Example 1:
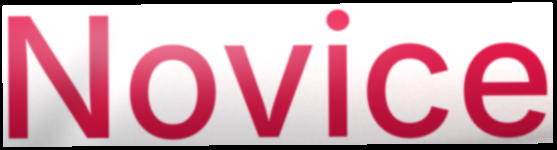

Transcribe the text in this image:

Novice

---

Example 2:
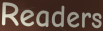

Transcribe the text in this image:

Readers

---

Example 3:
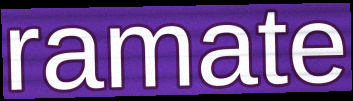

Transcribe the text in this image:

ramate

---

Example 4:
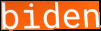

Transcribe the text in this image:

biden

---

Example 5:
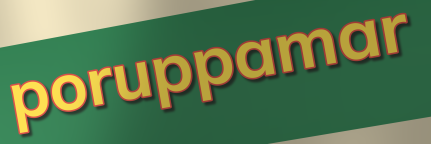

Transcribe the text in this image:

poruppamar